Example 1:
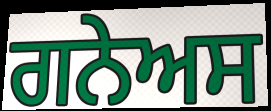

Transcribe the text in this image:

ਗਨੇਅਸ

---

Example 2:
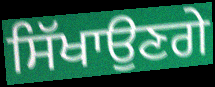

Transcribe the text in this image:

ਸਿੱਖਾਉਣਗੇ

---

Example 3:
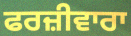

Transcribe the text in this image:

ਫਰਜ਼ੀਵਾਰਾ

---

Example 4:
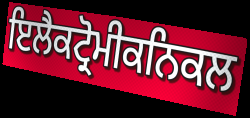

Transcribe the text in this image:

ਇਲੈਕਟ੍ਰੋਮੀਕਨਿਕਲ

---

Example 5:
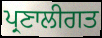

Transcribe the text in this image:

ਪ੍ਰਣਾਲੀਗਤ